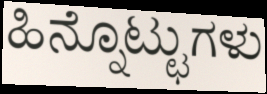
ಹಿನ್ನೊಟ್ಟುಗಳು